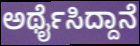
ಅರ್ಥೈಸಿದ್ದಾನೆ